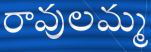
రావులమ్మ